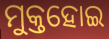
ମୁକ୍ତହୋଇ